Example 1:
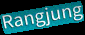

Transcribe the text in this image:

Rangjung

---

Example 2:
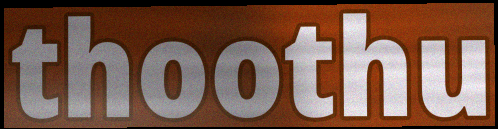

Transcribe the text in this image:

thoothu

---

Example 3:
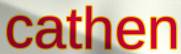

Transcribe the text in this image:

cathen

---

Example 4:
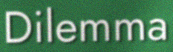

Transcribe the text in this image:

Dilemma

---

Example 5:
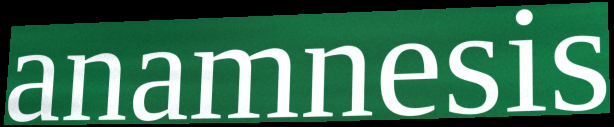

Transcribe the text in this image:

anamnesis